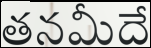
తనమీదే